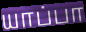
யாப்பா